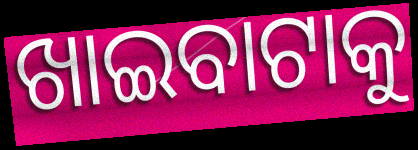
ଖାଇବାଟାକୁ